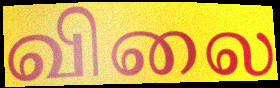
விலை